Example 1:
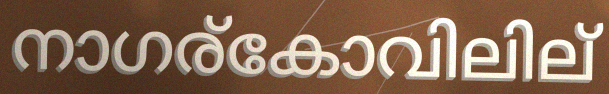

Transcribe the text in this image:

നാഗര്കോവിലില്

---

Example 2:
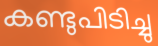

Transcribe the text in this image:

കണ്ടുപിടിച്ചു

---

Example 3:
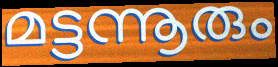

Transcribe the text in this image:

മട്ടന്നൂരും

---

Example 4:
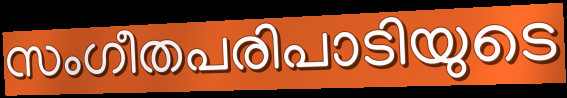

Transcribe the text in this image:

സംഗീതപരിപാടിയുടെ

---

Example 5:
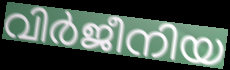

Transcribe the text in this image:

വിർജീനിയ